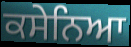
ਕਸੇਨਿਆ